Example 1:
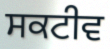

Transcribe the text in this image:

ਸਕਟੀਵ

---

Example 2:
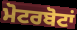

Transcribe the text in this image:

ਮੋਟਰਬੋਟਾਂ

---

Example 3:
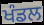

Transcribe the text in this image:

ਖੰਡਲ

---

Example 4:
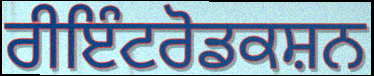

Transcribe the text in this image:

ਰੀਇੰਟਰੋਡਕਸ਼ਨ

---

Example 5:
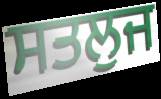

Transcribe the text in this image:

ਸਤਲੁਜ